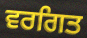
ਵਰਗਿਤ